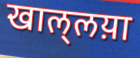
खाल्लय़ा